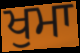
ਖੁਮਾ